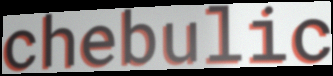
chebulic